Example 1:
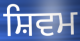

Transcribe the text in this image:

ਸ਼ਿਵਮ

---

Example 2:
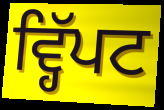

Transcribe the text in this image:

ਵ੍ਹਿੱਪਟ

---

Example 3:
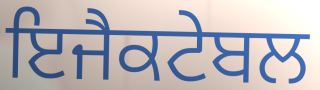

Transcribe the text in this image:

ਇਜੈਕਟੇਬਲ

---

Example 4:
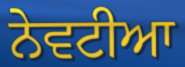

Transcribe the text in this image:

ਨੇਵਟੀਆ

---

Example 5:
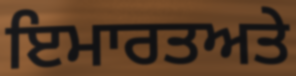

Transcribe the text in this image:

ਇਮਾਰਤਅਤੇ